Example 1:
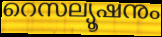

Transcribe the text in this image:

റെസല്യൂഷനും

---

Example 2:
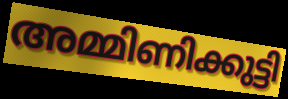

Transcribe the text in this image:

അമ്മിണിക്കുട്ടി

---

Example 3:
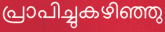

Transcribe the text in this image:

പ്രാപിച്ചുകഴിഞ്ഞു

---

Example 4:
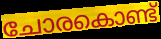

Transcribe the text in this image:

ചോരകൊണ്ട്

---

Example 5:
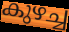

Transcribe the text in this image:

കുഴച്ച